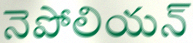
నెపోలియన్